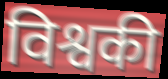
विश्वकी